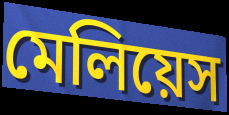
মেলিয়েস